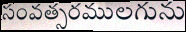
సంవత్సరములగును